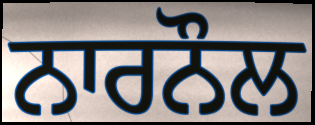
ਨਾਰਨੌਲ